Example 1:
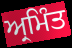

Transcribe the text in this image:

ਅ੍ਰਮਿੰਤ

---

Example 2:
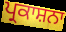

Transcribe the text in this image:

ਪ੍ਰਕਾਸ਼ਨਾ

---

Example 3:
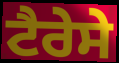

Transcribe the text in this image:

ਟੈਰੇਸੇ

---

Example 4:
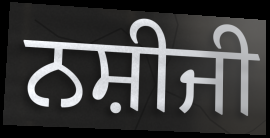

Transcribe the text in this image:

ਨਸ਼ੀਜੀ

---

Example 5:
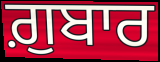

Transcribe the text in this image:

ਗ਼ੁਬਾਰ